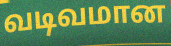
வடிவமான